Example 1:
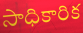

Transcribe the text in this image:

సాధికారిక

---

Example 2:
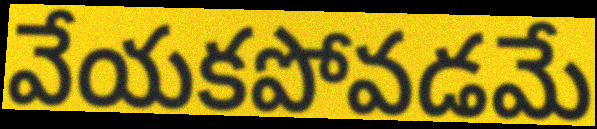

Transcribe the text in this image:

వేయకపోవడమే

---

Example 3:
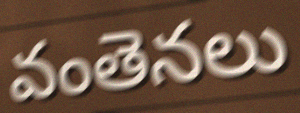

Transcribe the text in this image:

వంతెనలు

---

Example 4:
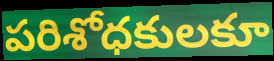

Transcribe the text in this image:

పరిశోధకులకూ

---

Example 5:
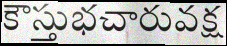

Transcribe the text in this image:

కౌస్తుభచారువక్ష